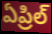
ఏప్రిల్